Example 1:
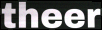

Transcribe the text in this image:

theer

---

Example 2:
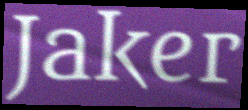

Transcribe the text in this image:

Jaker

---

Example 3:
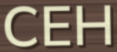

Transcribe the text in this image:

CEH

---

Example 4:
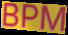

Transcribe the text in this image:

BPM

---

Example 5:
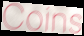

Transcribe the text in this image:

Coins